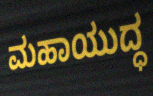
ಮಹಾಯುದ್ಧ